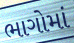
ભાગોમાં